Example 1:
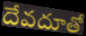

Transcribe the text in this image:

దేవదూతో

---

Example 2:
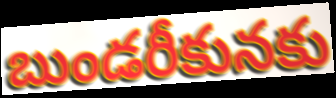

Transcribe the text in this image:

బుండరీకునకు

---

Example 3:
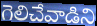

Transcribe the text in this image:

గెలిచేవాడిని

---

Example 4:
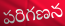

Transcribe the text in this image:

పరిగణన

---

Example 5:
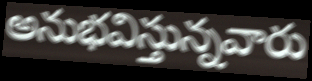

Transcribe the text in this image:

అనుభవిస్తున్నవారు